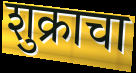
शुक्राचा